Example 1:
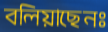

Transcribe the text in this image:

বলিয়াছেনঃ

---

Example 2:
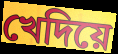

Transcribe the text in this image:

খেদিয়ে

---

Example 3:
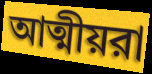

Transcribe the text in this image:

আত্মীয়রা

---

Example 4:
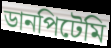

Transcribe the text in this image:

ডানপিটেমি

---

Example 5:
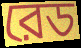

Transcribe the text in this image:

রেড